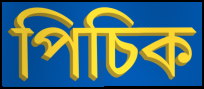
পিচিক